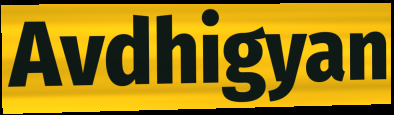
Avdhigyan